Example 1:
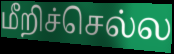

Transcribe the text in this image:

மீறிச்செல்ல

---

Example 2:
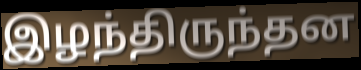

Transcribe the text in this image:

இழந்திருந்தன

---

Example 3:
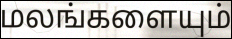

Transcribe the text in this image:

மலங்களையும்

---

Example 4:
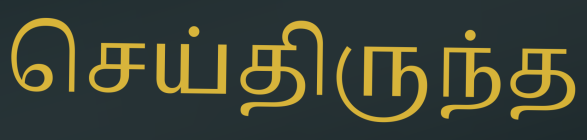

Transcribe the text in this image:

செய்திருந்த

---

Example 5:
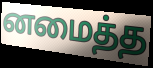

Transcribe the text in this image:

னமைத்த